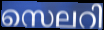
സെലറി